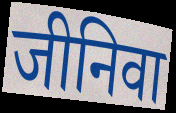
जीनिवा